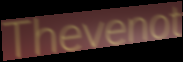
Thevenot